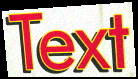
Text